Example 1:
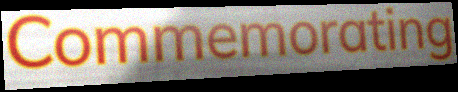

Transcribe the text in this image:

Commemorating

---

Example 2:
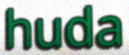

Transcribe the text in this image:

huda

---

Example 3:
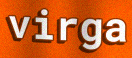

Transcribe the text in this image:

virga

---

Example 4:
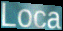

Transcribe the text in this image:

Loca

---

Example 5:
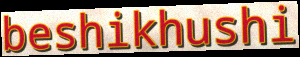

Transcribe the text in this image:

beshikhushi